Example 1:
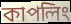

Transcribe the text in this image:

কাপলিং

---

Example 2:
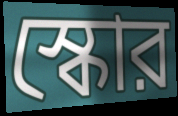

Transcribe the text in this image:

স্কোর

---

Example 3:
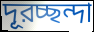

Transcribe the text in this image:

দূরচ্ছন্দা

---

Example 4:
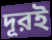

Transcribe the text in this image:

দূরই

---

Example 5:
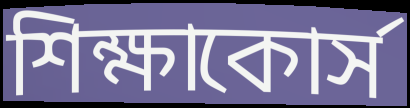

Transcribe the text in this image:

শিক্ষাকোর্স